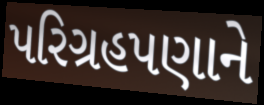
પરિગ્રહપણાને